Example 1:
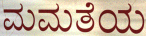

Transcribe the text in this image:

ಮಮತೆಯ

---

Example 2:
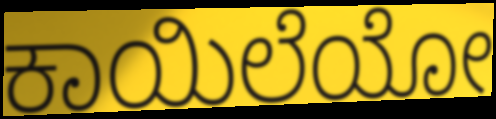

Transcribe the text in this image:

ಕಾಯಿಲೆಯೋ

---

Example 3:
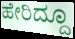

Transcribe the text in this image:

ಹೇರಿದ್ದೂ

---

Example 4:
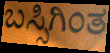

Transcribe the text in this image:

ಬಸ್ಸಿಗಿಂತ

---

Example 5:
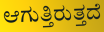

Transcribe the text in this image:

ಆಗುತ್ತಿರುತ್ತದೆ